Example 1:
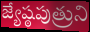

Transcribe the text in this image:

జ్యేష్ఠపుత్రుని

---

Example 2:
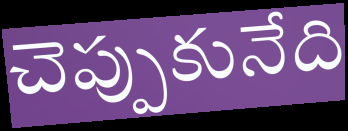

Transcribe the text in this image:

చెప్పుకునేది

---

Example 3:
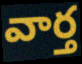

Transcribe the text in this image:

వార్త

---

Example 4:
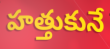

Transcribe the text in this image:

హత్తుకునే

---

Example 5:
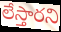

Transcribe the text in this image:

లేస్తారని